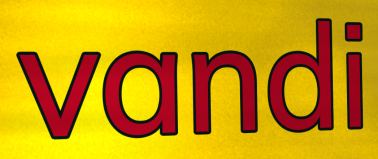
vandi